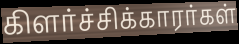
கிளர்ச்சிக்காரர்கள்